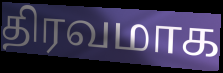
திரவமாக